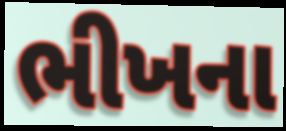
ભીખના